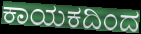
ಕಾಯಕದಿಂದ